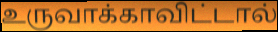
உருவாக்காவிட்டால்